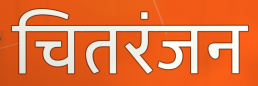
चितरंजन